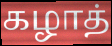
கழாத்